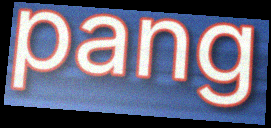
pang